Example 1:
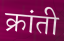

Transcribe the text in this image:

क्रांती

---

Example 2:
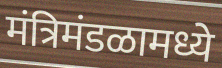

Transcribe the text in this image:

मंत्रिमंडळामध्ये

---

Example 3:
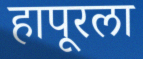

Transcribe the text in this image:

हापूरला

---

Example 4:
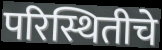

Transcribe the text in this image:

परिस्थितीचे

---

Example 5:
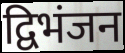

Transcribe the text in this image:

द्विभंजन